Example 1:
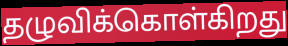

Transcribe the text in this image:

தழுவிக்கொள்கிறது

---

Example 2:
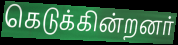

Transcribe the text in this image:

கெடுக்கின்றனர்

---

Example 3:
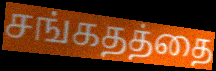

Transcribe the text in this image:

சங்கதத்தை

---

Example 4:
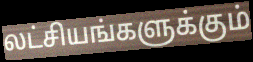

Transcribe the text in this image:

லட்சியங்களுக்கும்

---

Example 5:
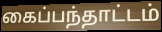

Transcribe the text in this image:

கைப்பந்தாட்டம்